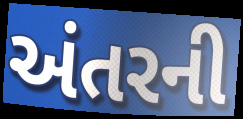
અંતરની